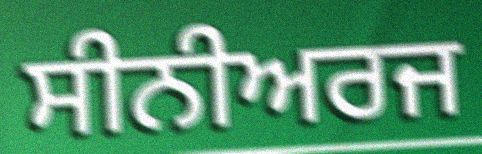
ਸੀਨੀਅਰਜ